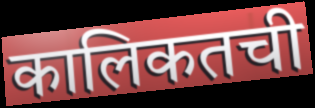
कालिकतची